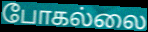
போகல்லை